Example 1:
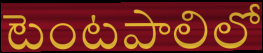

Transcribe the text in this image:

టెంటపాలిలో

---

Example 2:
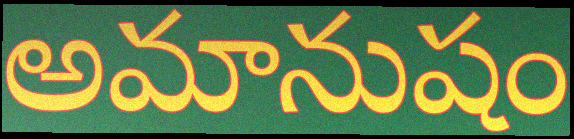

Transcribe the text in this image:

అమానుషం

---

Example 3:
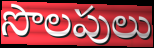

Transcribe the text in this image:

సొలపులు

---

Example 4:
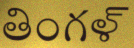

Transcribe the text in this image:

తింగళ్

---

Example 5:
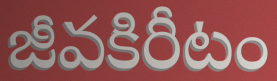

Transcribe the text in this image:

జీవకిరీటం